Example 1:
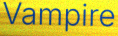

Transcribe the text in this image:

Vampire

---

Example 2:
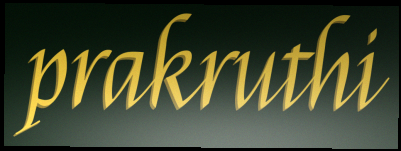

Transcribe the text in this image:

prakruthi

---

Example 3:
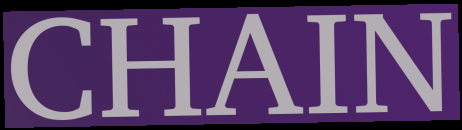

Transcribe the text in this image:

CHAIN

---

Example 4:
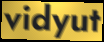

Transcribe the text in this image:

vidyut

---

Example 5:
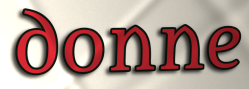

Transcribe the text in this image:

donne